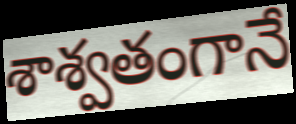
శాశ్వతంగానే